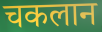
चकलान